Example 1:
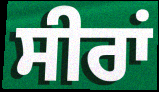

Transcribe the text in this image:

ਸੀਰਾਂ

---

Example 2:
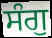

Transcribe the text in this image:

ਸੰਗੁ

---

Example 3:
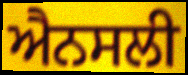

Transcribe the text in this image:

ਐਨਸਲੀ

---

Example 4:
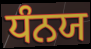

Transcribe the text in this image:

ਧੰਨਯ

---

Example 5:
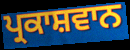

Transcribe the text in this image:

ਪ੍ਰਕਾਸ਼ਵਾਨ